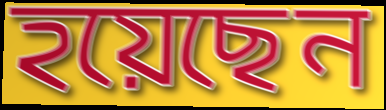
হয়েছেন